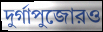
দুর্গাপুজোরও